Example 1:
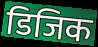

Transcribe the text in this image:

डिजिक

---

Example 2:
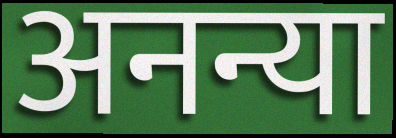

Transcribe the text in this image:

अनन्या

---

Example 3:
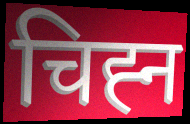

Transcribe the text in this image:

चिह्‍न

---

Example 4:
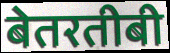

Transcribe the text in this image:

बेतरतीबी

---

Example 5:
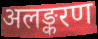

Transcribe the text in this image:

अलङ्करण